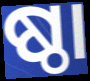
ଷ୍ଠା